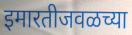
इमारतीजवळच्या